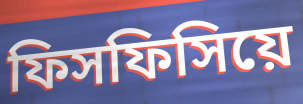
ফিসফিসিয়ে